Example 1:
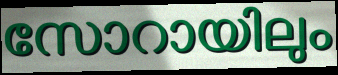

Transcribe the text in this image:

സോറായിലും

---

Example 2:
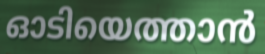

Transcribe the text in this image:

ഓടിയെത്താൻ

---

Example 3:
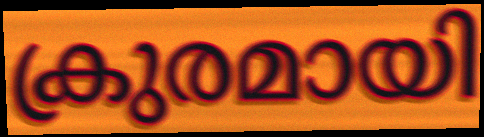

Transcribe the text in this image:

ക്രുരമായി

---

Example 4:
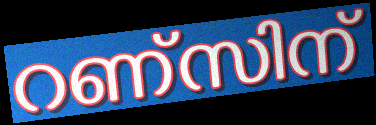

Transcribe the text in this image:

റണ്സിന്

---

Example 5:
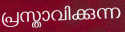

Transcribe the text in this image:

പ്രസ്താവിക്കുന്ന